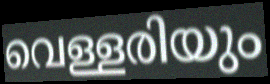
വെള്ളരിയും